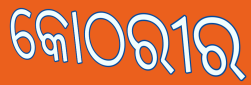
କୋଠରୀର